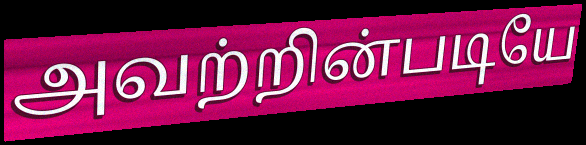
அவற்றின்படியே